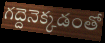
గద్దెనెక్కడంతో